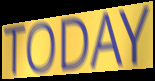
TODAY